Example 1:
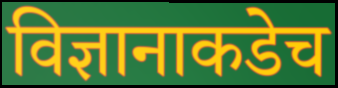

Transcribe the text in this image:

विज्ञानाकडेच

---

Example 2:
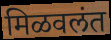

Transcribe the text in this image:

मिळवलंत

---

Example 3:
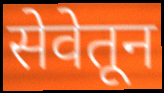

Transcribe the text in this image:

सेवेतून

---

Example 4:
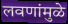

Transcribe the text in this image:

लवणांमुळे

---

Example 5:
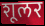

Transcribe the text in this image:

शूलर